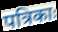
पत्रिकाः